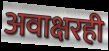
अवाक्षरही